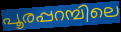
പൂരപ്പറമ്പിലെ